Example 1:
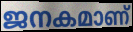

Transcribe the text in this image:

ജനകമാണ്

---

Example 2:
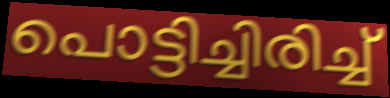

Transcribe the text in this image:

പൊട്ടിച്ചിരിച്ച്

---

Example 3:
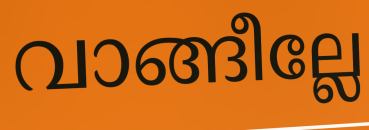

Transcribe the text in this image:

വാങ്ങീല്ലേ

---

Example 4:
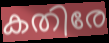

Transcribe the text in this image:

കതിരേ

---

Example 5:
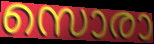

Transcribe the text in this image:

സൊരാ